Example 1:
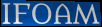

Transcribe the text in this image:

IFOAM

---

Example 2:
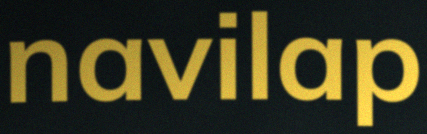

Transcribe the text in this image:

navilap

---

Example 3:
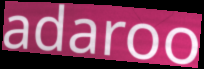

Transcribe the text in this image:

adaroo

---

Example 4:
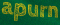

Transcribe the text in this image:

apurn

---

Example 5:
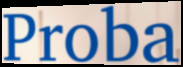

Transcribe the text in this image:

Proba